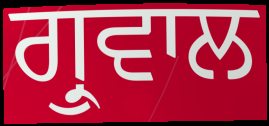
ਗ੍ਰੁਵਾਲ